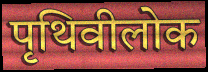
पृथिवीलोक